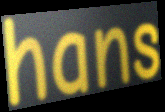
hans